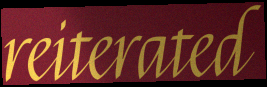
reiterated